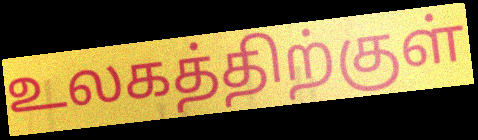
உலகத்திற்குள்